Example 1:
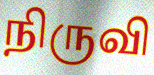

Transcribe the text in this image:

நிருவி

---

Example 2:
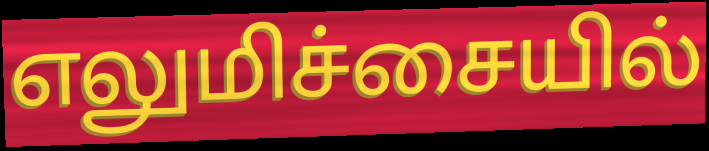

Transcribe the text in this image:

எலுமிச்சையில்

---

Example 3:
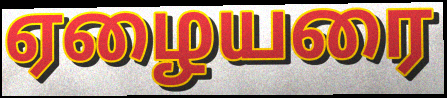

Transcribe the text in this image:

ஏழையரை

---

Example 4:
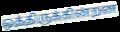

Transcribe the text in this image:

ஒத்திருக்கின்றன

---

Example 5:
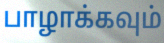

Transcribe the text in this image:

பாழாக்கவும்